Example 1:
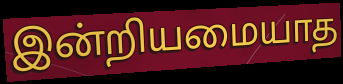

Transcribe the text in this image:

இன்றியமையாத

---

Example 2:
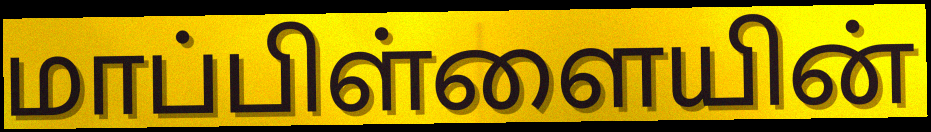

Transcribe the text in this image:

மாப்பிள்ளையின்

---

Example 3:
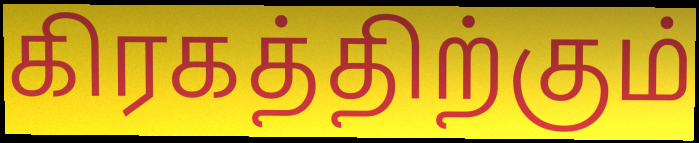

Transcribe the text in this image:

கிரகத்திற்கும்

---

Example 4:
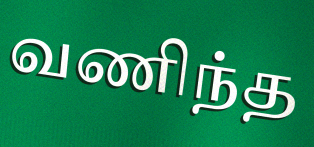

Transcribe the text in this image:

வணிந்த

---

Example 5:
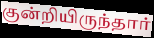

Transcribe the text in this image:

குன்றியிருந்தார்